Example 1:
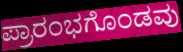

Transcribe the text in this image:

ಪ್ರಾರಂಭಗೊಂಡವು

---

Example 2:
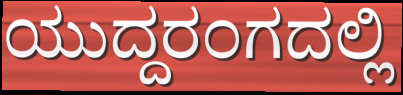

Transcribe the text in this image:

ಯುದ್ದರಂಗದಲ್ಲಿ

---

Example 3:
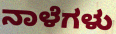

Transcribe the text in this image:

ನಾಳೆಗಳು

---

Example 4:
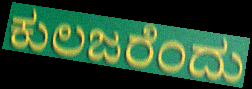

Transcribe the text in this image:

ಕುಲಜರೆಂದು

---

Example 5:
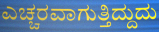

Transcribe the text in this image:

ಎಚ್ಚರವಾಗುತ್ತಿದ್ದುದು